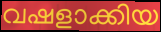
വഷളാക്കിയ